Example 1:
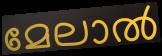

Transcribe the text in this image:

മേലാൽ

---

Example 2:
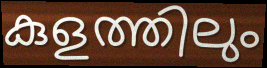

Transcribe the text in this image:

കുളത്തിലും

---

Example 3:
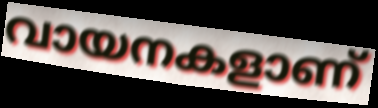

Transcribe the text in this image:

വായനകളാണ്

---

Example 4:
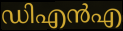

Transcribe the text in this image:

ഡിഎൻഎ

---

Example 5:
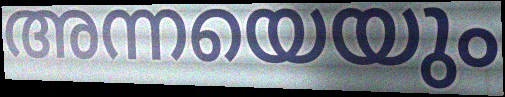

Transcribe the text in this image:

അന്നയെയും